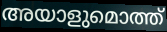
അയാളുമൊത്ത്